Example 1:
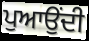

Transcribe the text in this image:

ਪੁਆਉਂਦੀ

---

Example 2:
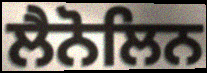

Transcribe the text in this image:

ਲੈਨੋਲਿਨ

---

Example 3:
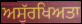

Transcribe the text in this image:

ਅਸੁੱਰਖਿਅਤਾ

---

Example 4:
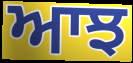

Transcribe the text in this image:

ਆਝ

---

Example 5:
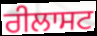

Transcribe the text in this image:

ਰੀਲਾਸਟ